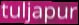
tuljapur